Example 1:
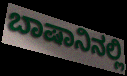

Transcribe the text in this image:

ಬಾಷಾನಿನಲ್ಲಿ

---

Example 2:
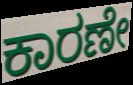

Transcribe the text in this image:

ಕಾರಣೇ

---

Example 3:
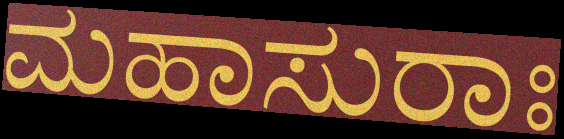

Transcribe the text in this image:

ಮಹಾಸುರಾಃ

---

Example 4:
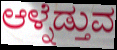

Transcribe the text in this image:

ಆಳ್ನೆಡ್ತುವ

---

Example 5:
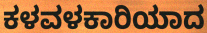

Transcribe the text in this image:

ಕಳವಳಕಾರಿಯಾದ